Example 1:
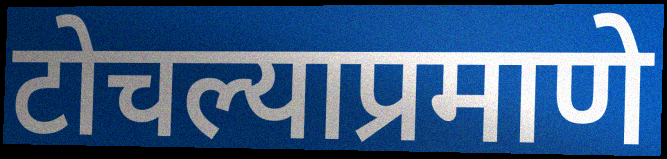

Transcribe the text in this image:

टोचल्याप्रमाणे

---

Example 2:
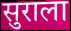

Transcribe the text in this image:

सुराला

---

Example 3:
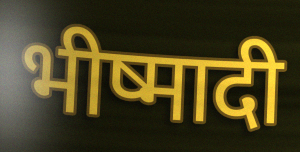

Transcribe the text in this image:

भीष्मादी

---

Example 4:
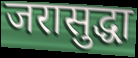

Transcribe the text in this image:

जरासुद्धा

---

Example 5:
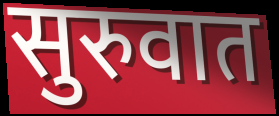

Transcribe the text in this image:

सुरुवात